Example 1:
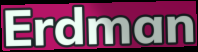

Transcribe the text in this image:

Erdman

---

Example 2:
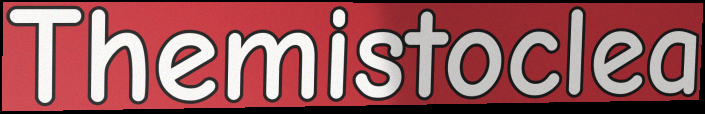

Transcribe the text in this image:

Themistoclea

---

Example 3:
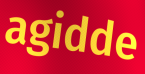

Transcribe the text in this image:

agidde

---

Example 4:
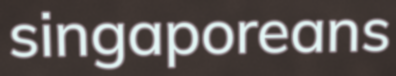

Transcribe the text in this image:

singaporeans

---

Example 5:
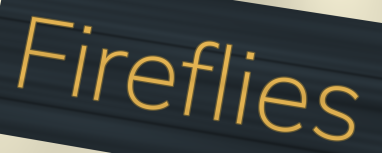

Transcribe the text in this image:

Fireflies